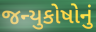
જન્યુકોષોનું